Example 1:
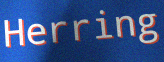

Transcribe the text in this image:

Herring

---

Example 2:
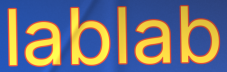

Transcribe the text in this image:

lablab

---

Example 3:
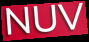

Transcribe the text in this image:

NUV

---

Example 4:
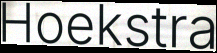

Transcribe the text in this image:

Hoekstra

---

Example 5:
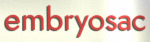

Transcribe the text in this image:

embryosac